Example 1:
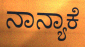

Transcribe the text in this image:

ನಾನ್ಯಾಕೆ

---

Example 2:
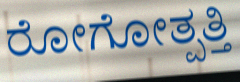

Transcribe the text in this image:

ರೋಗೋತ್ಪತ್ತಿ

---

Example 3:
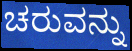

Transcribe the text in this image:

ಚರುವನ್ನು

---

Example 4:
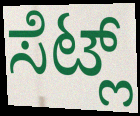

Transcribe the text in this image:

ಸೆಟ್ಲ್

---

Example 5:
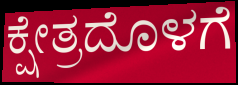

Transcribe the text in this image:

ಕ್ಷೇತ್ರದೊಳಗೆ